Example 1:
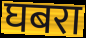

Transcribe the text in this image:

घबरा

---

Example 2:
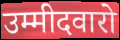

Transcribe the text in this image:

उम्मीदवारो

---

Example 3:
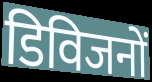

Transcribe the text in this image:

डिविजनों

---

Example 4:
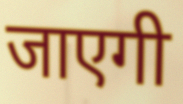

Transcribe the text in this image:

जाएगी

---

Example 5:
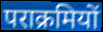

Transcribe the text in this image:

पराक्रमियों